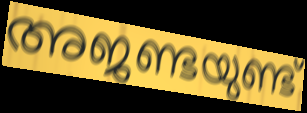
അജണ്ടയുണ്ട്